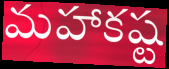
మహాకష్ట